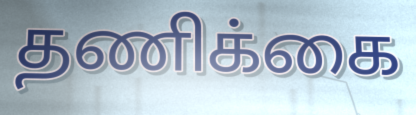
தணிக்கை